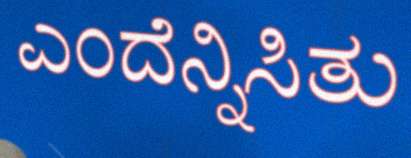
ಎಂದೆನ್ನಿಸಿತು